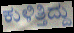
ಕುಳಿತ್ತಿದ್ದು